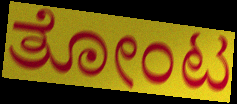
ತೋಂಟ